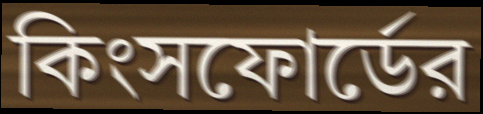
কিংসফোর্ডের